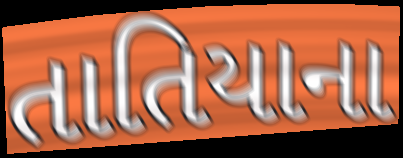
તાતિયાના